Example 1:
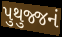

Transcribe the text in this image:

પુથુજ્જનં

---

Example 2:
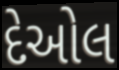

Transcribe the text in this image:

દેઓલ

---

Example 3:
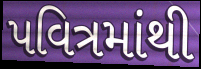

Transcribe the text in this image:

પવિત્રમાંથી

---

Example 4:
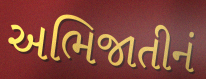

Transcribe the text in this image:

અભિજાતીનં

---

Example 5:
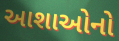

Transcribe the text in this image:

આશાઓનો